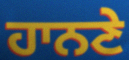
ਹਾਨਣੇ